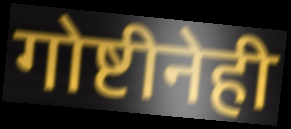
गोष्टीनेही